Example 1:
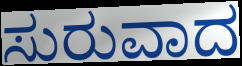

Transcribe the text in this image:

ಸುರುವಾದ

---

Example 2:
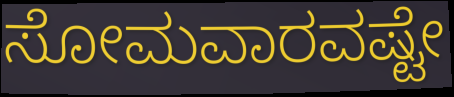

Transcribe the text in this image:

ಸೋಮವಾರವಷ್ಟೇ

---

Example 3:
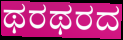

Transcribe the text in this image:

ಥರಥರದ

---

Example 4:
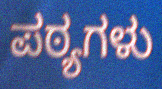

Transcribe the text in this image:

ಪಠ್ಯಗಳು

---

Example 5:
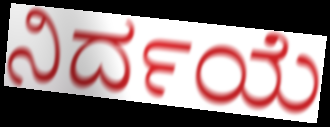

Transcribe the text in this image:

ನಿರ್ದಯೆ